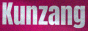
Kunzang